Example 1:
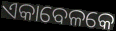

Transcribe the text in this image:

ଏକାବେଳକେ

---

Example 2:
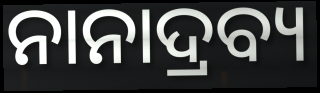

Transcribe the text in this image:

ନାନାଦ୍ରବ୍ୟ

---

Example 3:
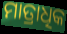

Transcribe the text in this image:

ମାତ୍ରାଧିକ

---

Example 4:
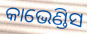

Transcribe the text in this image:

କାଭେଣ୍ଡିସ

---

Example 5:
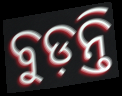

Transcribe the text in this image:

ବୁଡ଼ନ୍ତି